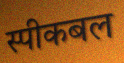
स्पीकबल